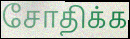
சோதிக்க